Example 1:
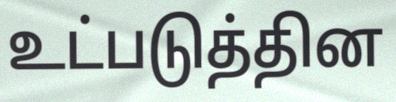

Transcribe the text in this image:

உட்படுத்தின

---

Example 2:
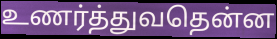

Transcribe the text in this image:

உணர்த்துவதென்ன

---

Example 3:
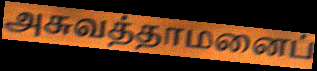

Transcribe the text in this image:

அசுவத்தாமனைப்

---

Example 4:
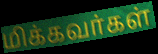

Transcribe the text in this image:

மிக்கவர்கள்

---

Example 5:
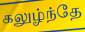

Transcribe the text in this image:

கலுழ்ந்தே